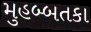
મુહબ્બતકા